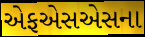
એફએસએસના